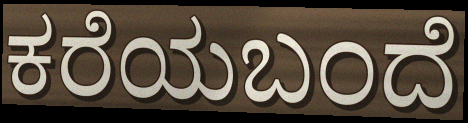
ಕರೆಯಬಂದೆ